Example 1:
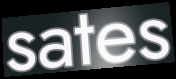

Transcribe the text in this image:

sates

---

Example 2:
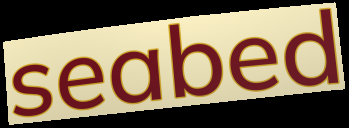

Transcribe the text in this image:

seabed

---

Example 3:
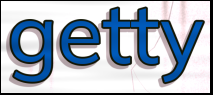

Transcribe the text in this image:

getty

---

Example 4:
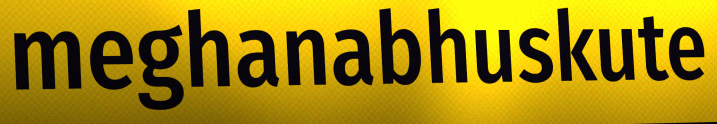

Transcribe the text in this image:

meghanabhuskute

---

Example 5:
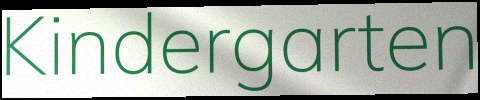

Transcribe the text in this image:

Kindergarten